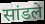
सांडले